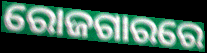
ରୋଜଗାରରେ